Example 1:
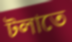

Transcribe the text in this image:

টলাতে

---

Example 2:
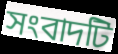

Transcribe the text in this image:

সংবাদটি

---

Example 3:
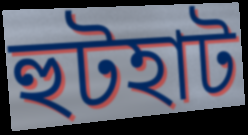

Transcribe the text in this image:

হুটহাট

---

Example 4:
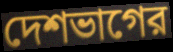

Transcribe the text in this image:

দেশভাগের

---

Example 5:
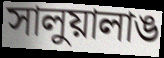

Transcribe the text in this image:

সালুয়ালাঙ